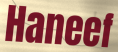
Haneef